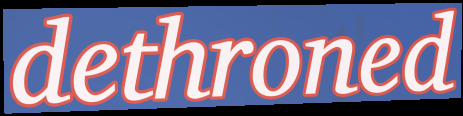
dethroned